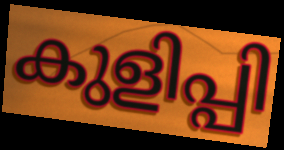
കുളിപ്പി